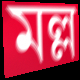
মল্ল